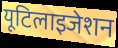
यूटिलाइजेशन